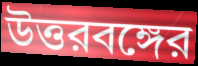
উত্তরবঙ্গের